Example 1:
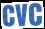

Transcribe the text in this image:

cvc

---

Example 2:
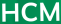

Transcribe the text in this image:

HCM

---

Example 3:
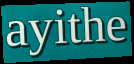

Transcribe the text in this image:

ayithe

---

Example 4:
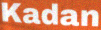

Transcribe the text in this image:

Kadan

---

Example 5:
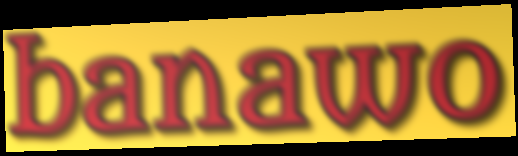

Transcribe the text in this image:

banawo